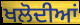
ਖਲੋਦੀਆਂ